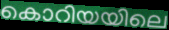
കൊറിയയിലെ